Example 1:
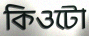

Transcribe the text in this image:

কিওটো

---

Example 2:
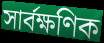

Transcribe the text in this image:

সার্বক্ষণিক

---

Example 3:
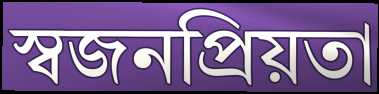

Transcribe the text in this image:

স্বজনপ্রিয়তা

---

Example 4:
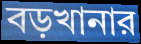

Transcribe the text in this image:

বড়খানার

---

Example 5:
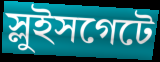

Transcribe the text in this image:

স্লুইসগেটে